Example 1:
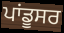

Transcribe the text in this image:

ਪਾਂਡੂਸਰ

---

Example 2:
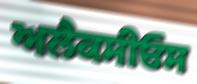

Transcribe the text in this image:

ਅਲੈਕਸੀਓਸ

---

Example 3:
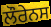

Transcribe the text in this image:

ਲੌਰੇਨਸ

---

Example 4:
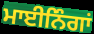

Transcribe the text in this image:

ਮਾਈਨਿੰਗਾਂ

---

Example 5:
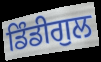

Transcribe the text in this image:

ਡਿੰਡੀਗੁਲ